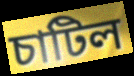
চাটিল